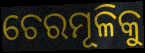
ଚେରମୂଳିକୁ